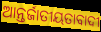
ଆନ୍ତର୍ଜାତୀୟତାବାଦୀ